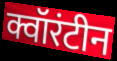
क्वॉरंटीन